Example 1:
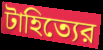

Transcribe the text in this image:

টাহিত্যের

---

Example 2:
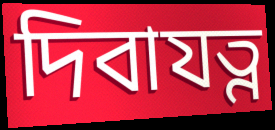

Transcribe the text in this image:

দিবাযত্ন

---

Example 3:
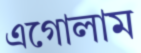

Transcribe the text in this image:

এগোলাম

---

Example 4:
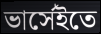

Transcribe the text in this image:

ভার্সেইতে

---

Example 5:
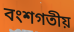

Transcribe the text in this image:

বংশগতীয়